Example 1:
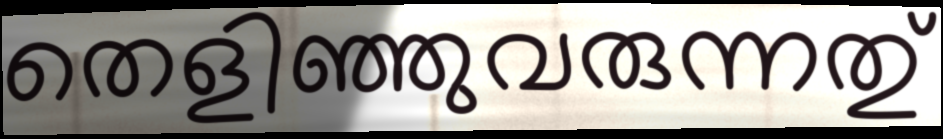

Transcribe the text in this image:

തെളിഞ്ഞുവരുന്നതു്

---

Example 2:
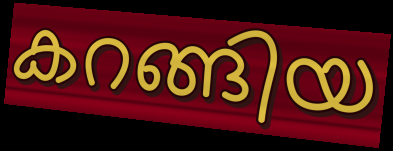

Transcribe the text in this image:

കറങ്ങിയ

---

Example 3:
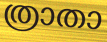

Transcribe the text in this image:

ത്രാതാ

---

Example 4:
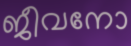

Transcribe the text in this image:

ജീവനോ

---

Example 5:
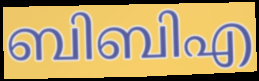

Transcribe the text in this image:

ബിബിഎ